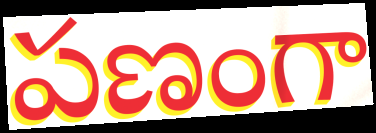
పణంగా